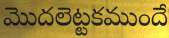
మొదలెట్టకముందే